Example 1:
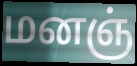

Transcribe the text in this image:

மனஞ்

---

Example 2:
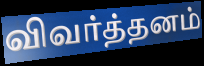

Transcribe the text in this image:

விவர்த்தனம்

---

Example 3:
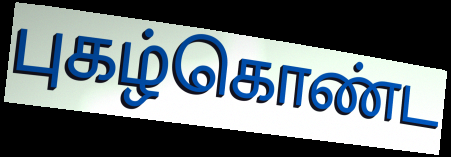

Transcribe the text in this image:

புகழ்கொண்ட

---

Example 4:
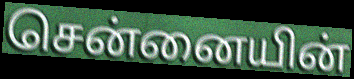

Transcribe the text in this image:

சென்னையின்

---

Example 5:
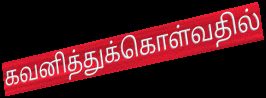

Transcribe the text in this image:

கவனித்துக்கொள்வதில்